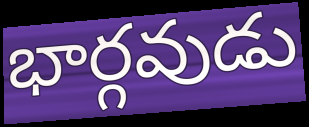
భార్గవుడు